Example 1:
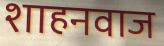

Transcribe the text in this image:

शाहनवाज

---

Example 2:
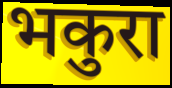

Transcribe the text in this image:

भकुरा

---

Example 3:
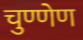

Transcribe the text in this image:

चुण्णेण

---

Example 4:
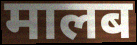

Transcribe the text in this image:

मालब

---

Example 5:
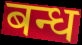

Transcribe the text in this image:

बन्ध